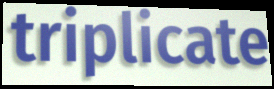
triplicate